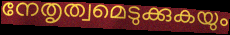
നേതൃത്വമെടുക്കുകയും